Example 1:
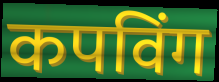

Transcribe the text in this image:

कपविंग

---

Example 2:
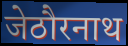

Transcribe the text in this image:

जेठौरनाथ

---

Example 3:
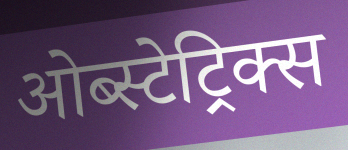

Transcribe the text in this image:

ओब्स्टेट्रिक्स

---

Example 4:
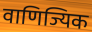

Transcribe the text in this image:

वाणिज्यिक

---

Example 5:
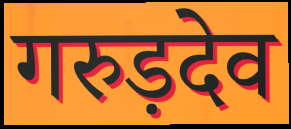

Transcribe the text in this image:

गरुड़देव